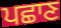
ਪਛਾਣ